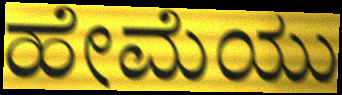
ಹೇಮೆಯು